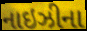
નાઇઝીના